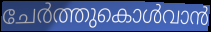
ചേർത്തുകൊൾവാൻ